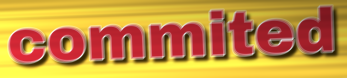
commited